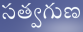
సత్వగుణ